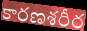
కారణశరీర